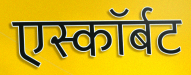
एस्कॉर्बट